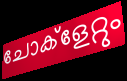
ചോക്ളേറ്റും